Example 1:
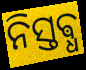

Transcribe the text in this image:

ନିସ୍ତଵ୍ଧ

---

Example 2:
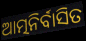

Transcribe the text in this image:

ଆତ୍ମନିର୍ବାସିତ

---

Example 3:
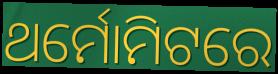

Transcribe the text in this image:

ଥର୍ମୋମିଟରେ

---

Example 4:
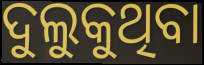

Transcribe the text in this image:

ଦୁଲୁକୁଥିବା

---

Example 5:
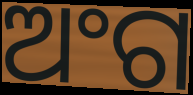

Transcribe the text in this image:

ଅଂଗ